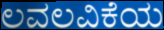
ಲವಲವಿಕೆಯ